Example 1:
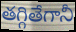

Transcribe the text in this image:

తగ్గితేగానీ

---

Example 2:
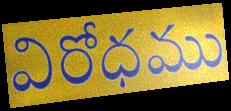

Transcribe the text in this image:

విరోధము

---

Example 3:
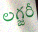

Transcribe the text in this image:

లగ్జరీ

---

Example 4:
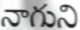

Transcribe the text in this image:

నాగుని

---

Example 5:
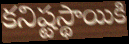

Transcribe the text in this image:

కనిష్టస్థాయికి